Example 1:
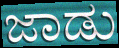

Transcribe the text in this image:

ಜಾಡು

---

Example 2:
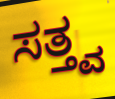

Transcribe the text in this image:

ಸತ್ತ್ವ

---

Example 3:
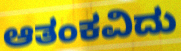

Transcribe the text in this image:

ಆತಂಕವಿದು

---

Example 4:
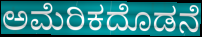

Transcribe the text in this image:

ಅಮೆರಿಕದೊಡನೆ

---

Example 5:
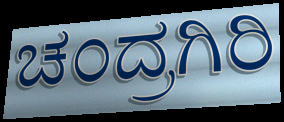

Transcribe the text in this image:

ಚಂದ್ರಗಿರಿ